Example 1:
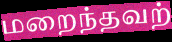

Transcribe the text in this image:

மறைந்தவற்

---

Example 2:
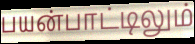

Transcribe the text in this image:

பயன்பாட்டிலும்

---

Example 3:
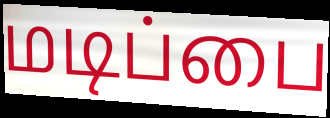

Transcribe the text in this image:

மடிப்பை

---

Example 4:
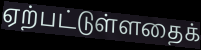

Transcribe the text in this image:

ஏற்பட்டுள்ளதைக்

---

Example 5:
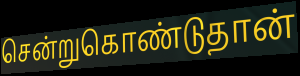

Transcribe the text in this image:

சென்றுகொண்டுதான்